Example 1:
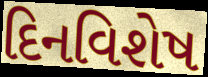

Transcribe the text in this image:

દિનવિશેષ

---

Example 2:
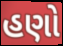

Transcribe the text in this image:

હણો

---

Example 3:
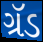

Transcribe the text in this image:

ગ્રૅડ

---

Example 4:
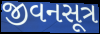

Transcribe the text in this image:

જીવનસૂત્ર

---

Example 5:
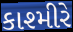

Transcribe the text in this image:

કાશ્મીરે